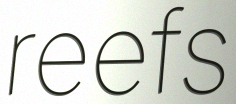
reefs